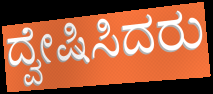
ದ್ವೇಷಿಸಿದರು